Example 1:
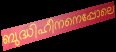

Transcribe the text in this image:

ബുദ്ധിഹീനനെപ്പോലെ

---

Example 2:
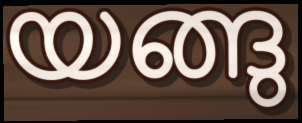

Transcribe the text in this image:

യങ്ങു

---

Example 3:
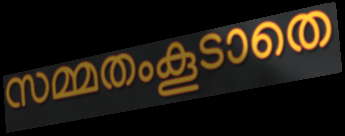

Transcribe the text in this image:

സമ്മതംകൂടാതെ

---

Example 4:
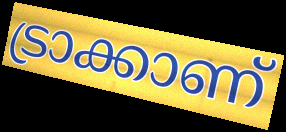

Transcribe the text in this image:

ട്രാക്കാണ്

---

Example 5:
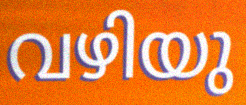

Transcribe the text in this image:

വഴിയു